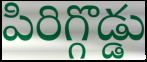
పిరిగ్గొడ్డు